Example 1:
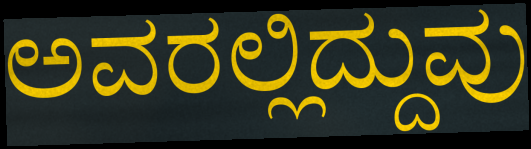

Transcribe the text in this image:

ಅವರಲ್ಲಿದ್ದುವು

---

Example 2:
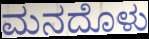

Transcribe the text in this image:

ಮನದೊಳು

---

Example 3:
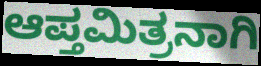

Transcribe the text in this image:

ಆಪ್ತಮಿತ್ರನಾಗಿ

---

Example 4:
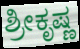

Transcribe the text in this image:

ಶ್ರೀಕೃಷ್ಣ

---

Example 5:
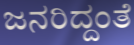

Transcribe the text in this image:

ಜನರಿದ್ದಂತೆ